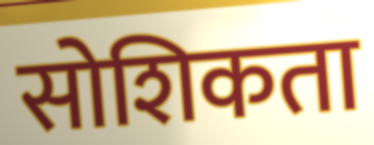
सोशिकता